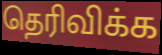
தெரிவிக்க